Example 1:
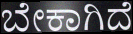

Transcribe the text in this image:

ಬೇಕಾಗಿದೆ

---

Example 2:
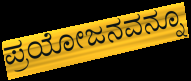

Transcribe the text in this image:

ಪ್ರಯೋಜನವನ್ನೂ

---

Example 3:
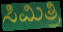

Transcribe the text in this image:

ಸಿಮಿತ್ರಿ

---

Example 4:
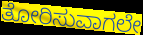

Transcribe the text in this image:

ತೋರಿಸುವಾಗಲೇ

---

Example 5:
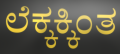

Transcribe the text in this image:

ಲೆಕ್ಕಕ್ಕಿಂತ